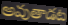
అవుతాడట